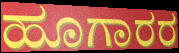
ಹೂಗಾರರ